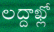
లద్దాఖ్లో